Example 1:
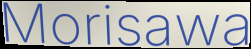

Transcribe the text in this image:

Morisawa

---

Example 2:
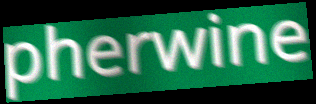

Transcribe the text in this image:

pherwine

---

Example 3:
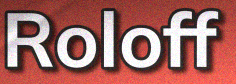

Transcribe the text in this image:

Roloff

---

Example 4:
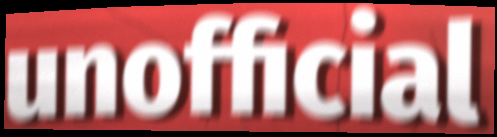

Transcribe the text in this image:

unofficial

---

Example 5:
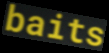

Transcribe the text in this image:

baits